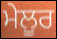
ਮੇਲੂਰ